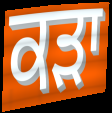
ਕੜਾ